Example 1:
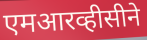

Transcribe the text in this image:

एमआरव्हीसीने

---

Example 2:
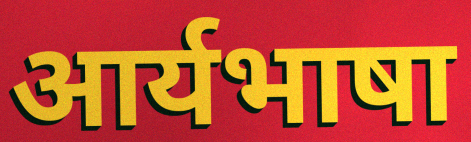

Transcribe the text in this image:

आर्यभाषा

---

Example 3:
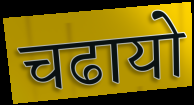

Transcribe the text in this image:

चढायो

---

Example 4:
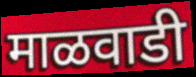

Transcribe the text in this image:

माळवाडी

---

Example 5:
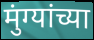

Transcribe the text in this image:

मुंग्यांच्या